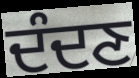
ਦੰਦਣ